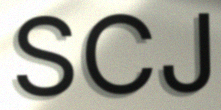
SCJ